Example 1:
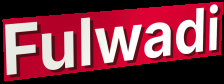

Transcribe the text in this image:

Fulwadi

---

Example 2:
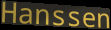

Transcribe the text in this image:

Hanssen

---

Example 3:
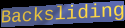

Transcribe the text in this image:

Backsliding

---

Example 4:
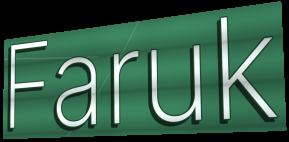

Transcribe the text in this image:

Faruk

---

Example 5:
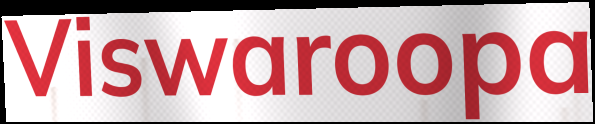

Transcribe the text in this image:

Viswaroopa